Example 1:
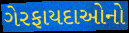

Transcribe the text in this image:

ગેરફાયદાઓનો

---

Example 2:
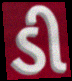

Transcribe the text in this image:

ડી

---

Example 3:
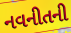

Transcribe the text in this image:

નવનીતની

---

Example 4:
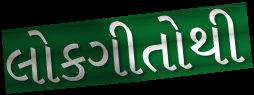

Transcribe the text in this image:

લોકગીતોથી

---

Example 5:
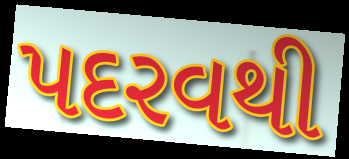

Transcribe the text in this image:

પદરવથી